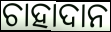
ଚାହାଦାନ